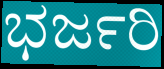
ಭರ್ಜರಿ